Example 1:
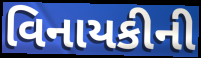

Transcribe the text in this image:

વિનાયકીની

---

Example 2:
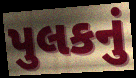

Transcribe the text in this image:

પુલકનું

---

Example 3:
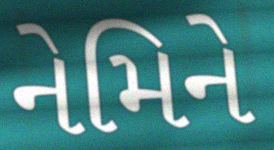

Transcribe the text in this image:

નેમિને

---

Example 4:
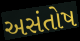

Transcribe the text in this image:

અસંતોષ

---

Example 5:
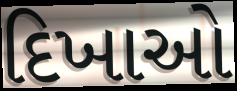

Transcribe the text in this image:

દિખાઓ